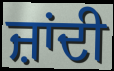
ਜ਼ਾਂਦੀ